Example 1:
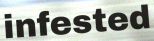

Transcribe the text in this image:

infested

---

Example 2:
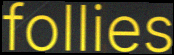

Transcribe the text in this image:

follies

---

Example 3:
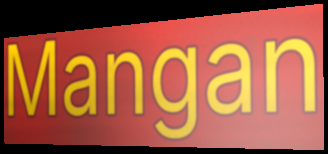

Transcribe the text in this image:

Mangan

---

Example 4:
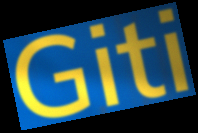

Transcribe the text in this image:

Giti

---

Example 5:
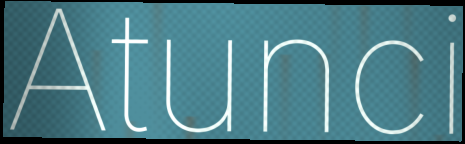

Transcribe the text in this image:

Atunci